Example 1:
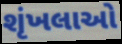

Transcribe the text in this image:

શૃંખલાઓ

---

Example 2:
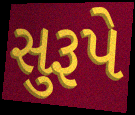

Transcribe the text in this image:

સુરૂપે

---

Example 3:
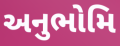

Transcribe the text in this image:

અનુભોમિ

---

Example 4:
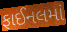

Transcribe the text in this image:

ફાઈનલમાં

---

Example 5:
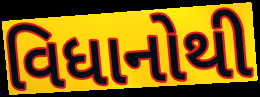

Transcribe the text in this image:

વિધાનોથી